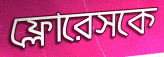
ফ্লোরেসকে